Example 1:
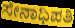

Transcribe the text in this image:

ಸೇನಾಧಿಪತಿ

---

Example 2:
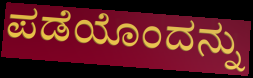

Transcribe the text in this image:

ಪಡೆಯೊಂದನ್ನು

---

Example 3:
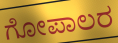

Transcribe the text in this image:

ಗೋಪಾಲರ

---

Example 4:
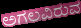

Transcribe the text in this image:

ಅಗಲವಿರುವ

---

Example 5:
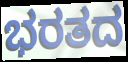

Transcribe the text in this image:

ಭರತದ